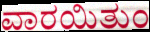
ವಾರಯಿತುಂ